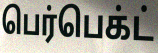
பெர்பெக்ட்